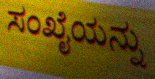
ಸಂಖೈಯನ್ನು